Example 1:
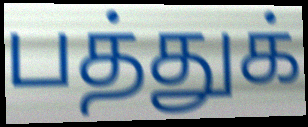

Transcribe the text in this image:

பத்துக்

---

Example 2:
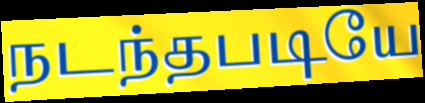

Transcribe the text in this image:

நடந்தபடியே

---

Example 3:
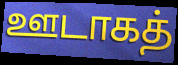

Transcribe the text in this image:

ஊடாகத்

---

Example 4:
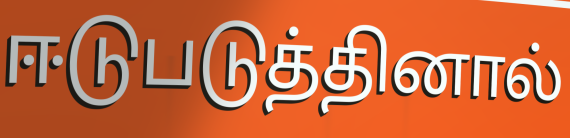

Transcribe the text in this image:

ஈடுபடுத்தினால்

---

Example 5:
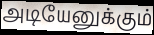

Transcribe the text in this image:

அடியேனுக்கும்